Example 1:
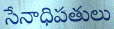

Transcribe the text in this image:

సేనాధిపతులు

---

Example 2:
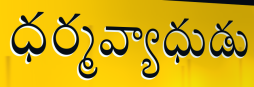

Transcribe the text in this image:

ధర్మవ్యాధుడు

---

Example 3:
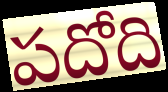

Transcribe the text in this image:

పదోది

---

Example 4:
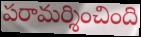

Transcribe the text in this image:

పరామర్శించింది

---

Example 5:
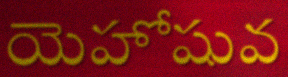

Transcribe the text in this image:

యెహోషువ